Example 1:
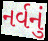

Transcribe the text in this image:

નર્વનું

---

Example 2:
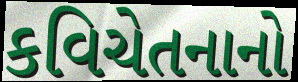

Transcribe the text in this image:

કવિચેતનાનો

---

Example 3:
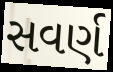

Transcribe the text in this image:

સવર્ણ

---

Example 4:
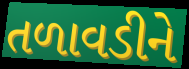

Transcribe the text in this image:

તળાવડીને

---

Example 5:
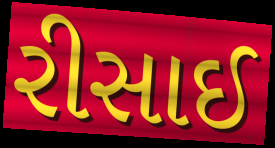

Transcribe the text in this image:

રીસાઈ